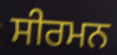
ਸੀਰਮਨ